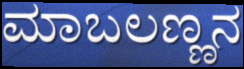
ಮಾಬಲಣ್ಣನ